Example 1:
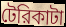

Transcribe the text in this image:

টেরিকাটা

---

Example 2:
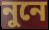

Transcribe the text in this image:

নুনে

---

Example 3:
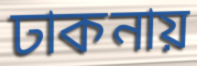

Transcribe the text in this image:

ঢাকনায়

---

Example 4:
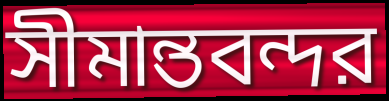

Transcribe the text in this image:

সীমান্তবন্দর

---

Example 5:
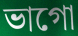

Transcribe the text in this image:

ভাগো